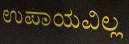
ಉಪಾಯವಿಲ್ಲ